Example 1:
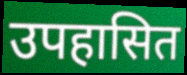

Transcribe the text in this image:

उपहासित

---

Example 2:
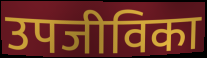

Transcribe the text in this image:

उपजीविका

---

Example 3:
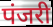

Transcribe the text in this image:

पंजरी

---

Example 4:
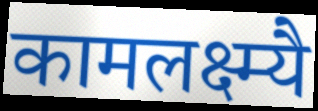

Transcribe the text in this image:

कामलक्ष्म्यै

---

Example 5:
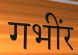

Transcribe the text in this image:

गभींर